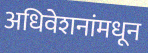
अधिवेशनांमधून